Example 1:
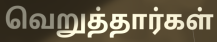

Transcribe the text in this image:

வெறுத்தார்கள்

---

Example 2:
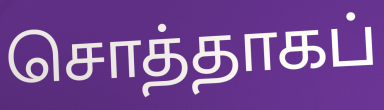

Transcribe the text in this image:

சொத்தாகப்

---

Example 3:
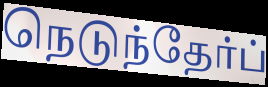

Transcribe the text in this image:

நெடுந்தேர்ப்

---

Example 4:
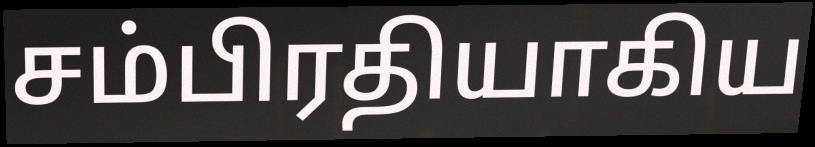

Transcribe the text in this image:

சம்பிரதியாகிய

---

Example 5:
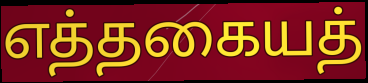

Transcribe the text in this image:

எத்தகையத்